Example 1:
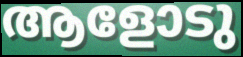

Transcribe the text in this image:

ആളോടു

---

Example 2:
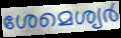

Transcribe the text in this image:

ശേമെശ്യർ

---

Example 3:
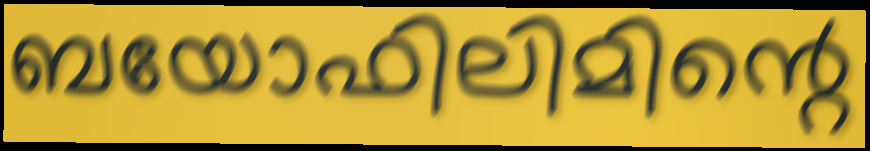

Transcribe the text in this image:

ബയോഫിലിമിന്റെ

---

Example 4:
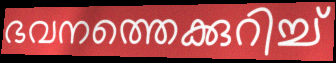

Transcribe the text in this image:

ഭവനത്തെക്കുറിച്ച്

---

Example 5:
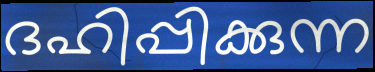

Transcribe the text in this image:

ദഹിപ്പിക്കുന്ന